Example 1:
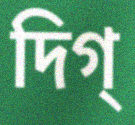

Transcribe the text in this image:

দিগ্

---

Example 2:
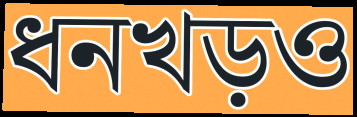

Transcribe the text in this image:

ধনখড়ও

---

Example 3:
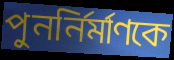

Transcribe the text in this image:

পুনর্নির্মাণকে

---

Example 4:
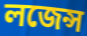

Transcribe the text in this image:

লজেন্স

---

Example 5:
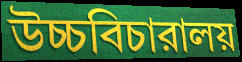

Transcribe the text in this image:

উচ্চবিচারালয়